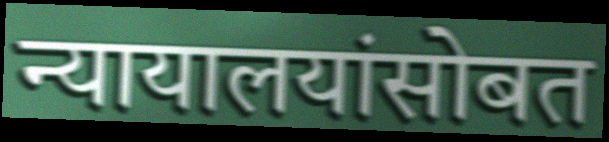
न्यायालयांसोबत